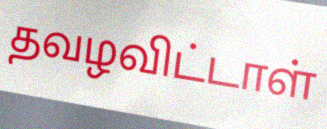
தவழவிட்டாள்